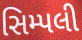
સિમ્પલી